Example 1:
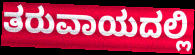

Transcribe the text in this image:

ತರುವಾಯದಲ್ಲಿ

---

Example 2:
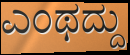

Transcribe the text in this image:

ಎಂಥದ್ದು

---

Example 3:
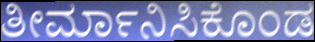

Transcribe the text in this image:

ತೀರ್ಮಾನಿಸಿಕೊಂಡ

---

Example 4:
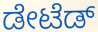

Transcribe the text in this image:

ಡೇಟೆಡ್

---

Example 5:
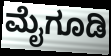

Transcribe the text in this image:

ಮೈಗೂಡಿ